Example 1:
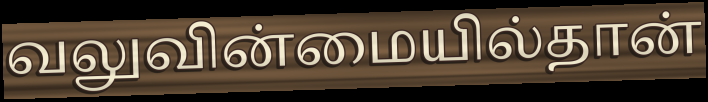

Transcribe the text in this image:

வலுவின்மையில்தான்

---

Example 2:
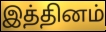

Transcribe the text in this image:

இத்தினம்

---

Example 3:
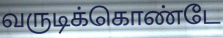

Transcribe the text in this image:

வருடிக்கொண்டே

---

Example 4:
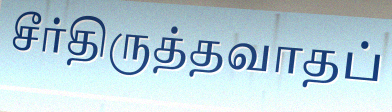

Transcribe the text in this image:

சீர்திருத்தவாதப்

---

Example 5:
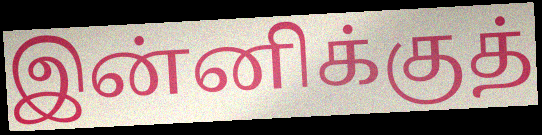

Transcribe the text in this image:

இன்னிக்குத்